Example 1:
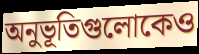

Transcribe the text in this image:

অনুভূতিগুলোকেও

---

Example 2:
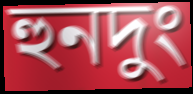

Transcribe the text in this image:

হুনদুং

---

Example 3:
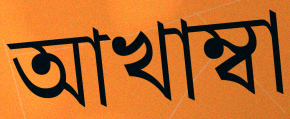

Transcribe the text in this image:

আখাম্বা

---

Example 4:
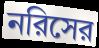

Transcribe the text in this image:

নরিসের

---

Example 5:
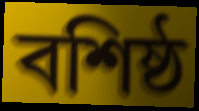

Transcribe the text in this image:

বশিষ্ঠ